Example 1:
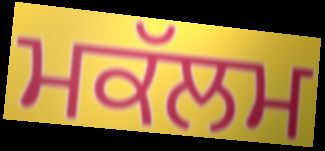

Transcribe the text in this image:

ਮਕੱਲਮ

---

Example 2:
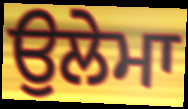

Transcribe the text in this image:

ਉਲੇਮਾ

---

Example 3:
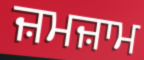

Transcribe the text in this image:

ਜ਼ਮਜ਼ਾਮ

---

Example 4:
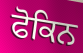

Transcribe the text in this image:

ਫੋਕਿਨ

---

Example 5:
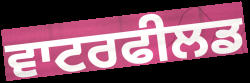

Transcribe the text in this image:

ਵਾਟਰਫੀਲਡ